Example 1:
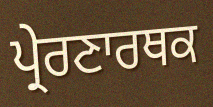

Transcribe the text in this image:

ਪ੍ਰੇਰਣਾਰਥਕ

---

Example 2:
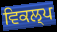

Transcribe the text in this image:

ਵਿਕਲ੍ਪ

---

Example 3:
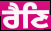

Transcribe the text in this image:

ਰੈਣਿ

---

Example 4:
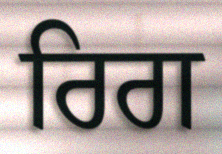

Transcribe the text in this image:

ਰਿਗ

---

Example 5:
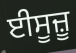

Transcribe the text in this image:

ਈਸੂਜ਼ੂ